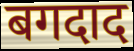
बगदाद